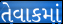
તેવાકમાં